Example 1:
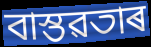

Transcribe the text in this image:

বাস্তৱতাৰ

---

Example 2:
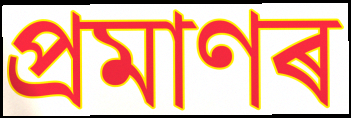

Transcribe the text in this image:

প্ৰমাণৰ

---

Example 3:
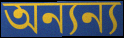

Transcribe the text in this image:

অন্যন্য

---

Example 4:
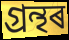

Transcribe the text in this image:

গ্ৰন্থৰ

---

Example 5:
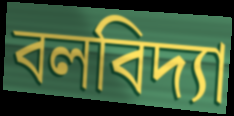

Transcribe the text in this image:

বলবিদ্যা